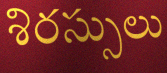
శిరస్సులు